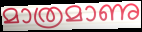
മാത്രമാണു